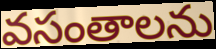
వసంతాలను